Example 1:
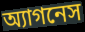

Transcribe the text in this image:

অ্যাগনেস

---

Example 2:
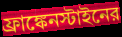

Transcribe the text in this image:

ফ্রাঙ্কেনস্টাইনের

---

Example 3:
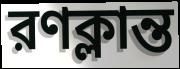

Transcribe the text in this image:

রণক্লান্ত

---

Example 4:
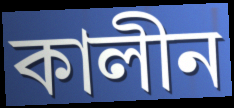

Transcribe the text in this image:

কালীন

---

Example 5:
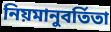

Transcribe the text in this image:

নিয়মানুবর্তিতা